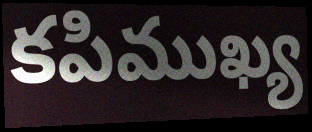
కపిముఖ్య